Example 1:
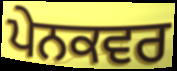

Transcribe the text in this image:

ਪੇਨਕਵਰ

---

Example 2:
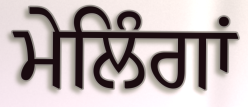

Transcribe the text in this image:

ਮੇਲਿੰਗਾਂ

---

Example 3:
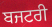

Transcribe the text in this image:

ਬਜਟਰੀ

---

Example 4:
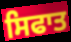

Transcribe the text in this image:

ਸਿਫਾਤ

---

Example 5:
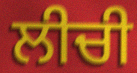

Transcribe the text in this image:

ਲੀਚੀ